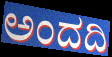
ಅಂದದಿ